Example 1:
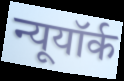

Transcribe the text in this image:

न्यूयॉर्क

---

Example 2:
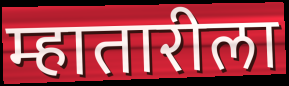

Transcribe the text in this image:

म्हातारीला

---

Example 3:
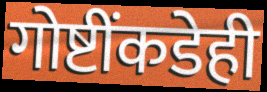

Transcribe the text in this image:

गोष्टींकडेही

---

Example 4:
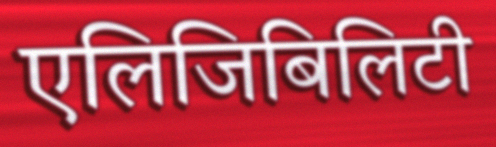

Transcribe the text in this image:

एलिजिबिलिटी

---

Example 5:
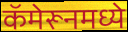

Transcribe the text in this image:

कॅमेरूनमध्ये